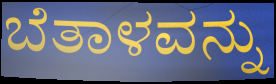
ಬೆತಾಳವನ್ನು